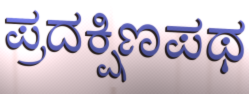
ಪ್ರದಕ್ಷಿಣಪಥ